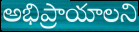
అభిప్రాయాలని